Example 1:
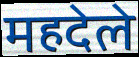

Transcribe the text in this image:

महदेले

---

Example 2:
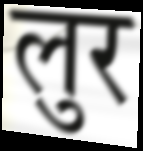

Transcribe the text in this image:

लुर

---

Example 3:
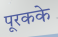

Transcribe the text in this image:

पूरकके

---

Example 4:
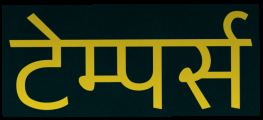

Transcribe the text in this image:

टेम्पर्स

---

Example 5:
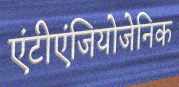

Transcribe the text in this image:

एंटीएंजियोजेनिक